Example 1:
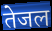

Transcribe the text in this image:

तेजल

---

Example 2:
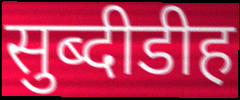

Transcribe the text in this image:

सुब्दीडीह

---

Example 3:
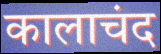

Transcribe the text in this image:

कालाचंद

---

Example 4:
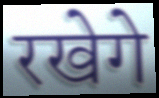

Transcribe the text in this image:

रखेगे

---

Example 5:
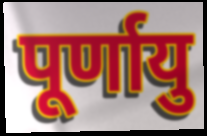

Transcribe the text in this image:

पूर्णायु